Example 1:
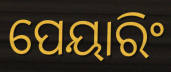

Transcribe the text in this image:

ପେୟାରିଂ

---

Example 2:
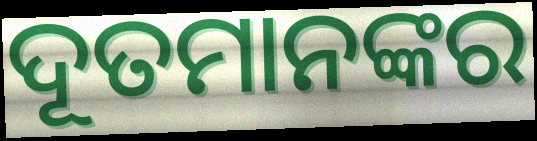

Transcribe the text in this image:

ଦୂତମାନଙ୍କର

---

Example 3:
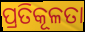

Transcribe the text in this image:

ପ୍ରତିକୂଳତା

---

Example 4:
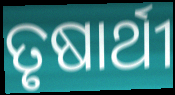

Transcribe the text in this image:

ତୃଷାର୍ଥୀ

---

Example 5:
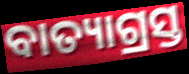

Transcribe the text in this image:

ବାତ୍ୟାଗ୍ରସ୍ତ